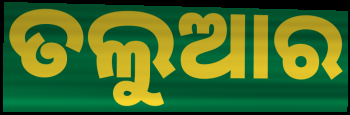
ତଲୁଆର